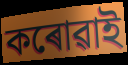
কৰোৱাই